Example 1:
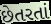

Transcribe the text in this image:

છેતરતાં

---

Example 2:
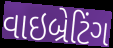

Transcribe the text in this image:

વાઇબ્રેટિંગ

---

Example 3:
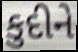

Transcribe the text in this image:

કુદીને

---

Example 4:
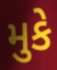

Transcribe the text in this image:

મુકે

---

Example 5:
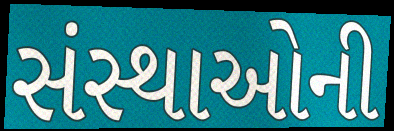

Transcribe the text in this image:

સંસ્થાઓની